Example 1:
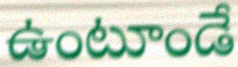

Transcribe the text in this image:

ఉంటూండే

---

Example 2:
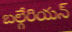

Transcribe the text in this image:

బల్గేరియన్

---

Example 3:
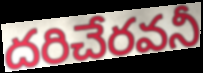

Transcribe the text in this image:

దరిచేరవనీ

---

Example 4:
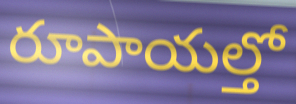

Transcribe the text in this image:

రూపాయల్తో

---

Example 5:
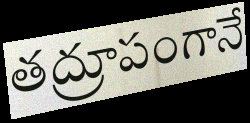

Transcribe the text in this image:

తద్రూపంగానే